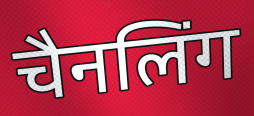
चैनलिंग